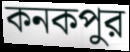
কনকপুর